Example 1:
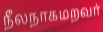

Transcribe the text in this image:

நீலநாகமறவர்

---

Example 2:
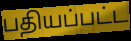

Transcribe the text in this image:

பதியப்பட்ட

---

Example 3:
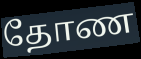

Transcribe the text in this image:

தோண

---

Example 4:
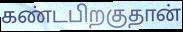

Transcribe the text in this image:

கண்டபிறகுதான்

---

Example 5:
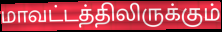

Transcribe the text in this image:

மாவட்டத்திலிருக்கும்